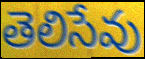
తెలిసేవు